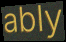
ably